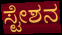
ಸ್ಟೇಶನ